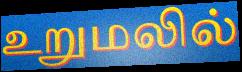
உறுமலில்